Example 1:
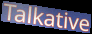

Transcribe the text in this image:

Talkative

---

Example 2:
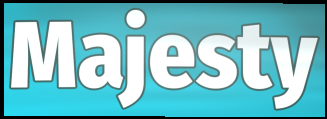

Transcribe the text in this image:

Majesty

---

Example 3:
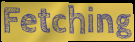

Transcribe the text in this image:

Fetching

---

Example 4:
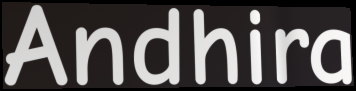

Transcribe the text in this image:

Andhira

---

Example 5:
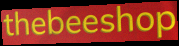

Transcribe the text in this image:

thebeeshop